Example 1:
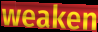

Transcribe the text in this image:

weaken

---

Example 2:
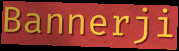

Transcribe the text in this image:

Bannerji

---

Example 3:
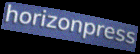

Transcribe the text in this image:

horizonpress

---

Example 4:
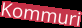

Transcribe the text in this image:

Kommuri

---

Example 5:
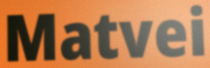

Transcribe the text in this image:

Matvei